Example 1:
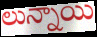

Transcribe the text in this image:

లున్నాయి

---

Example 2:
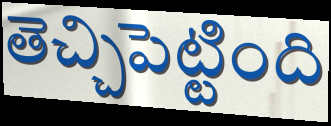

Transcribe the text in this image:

తెచ్చిపెట్టింది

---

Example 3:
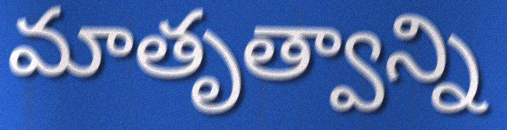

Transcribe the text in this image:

మాతృత్వాన్ని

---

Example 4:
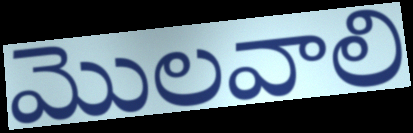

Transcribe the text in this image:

మొలవాలి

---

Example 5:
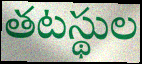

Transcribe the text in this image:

తటస్థుల